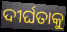
ଦୀର୍ଘତାକୁ